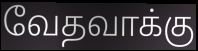
வேதவாக்கு